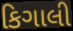
કિગાલી